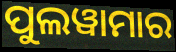
ପୁଲୱାମାର